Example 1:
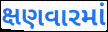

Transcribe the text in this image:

ક્ષણવારમાં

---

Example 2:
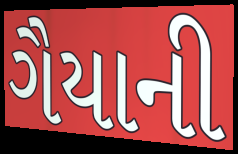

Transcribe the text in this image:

ગૈયાની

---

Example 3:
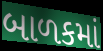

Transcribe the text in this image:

બાળકમાં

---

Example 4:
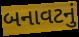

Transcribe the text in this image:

બનાવટનું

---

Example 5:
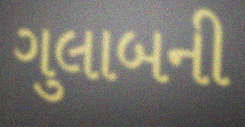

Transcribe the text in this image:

ગુલાબની